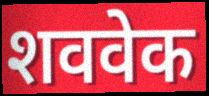
शववेक